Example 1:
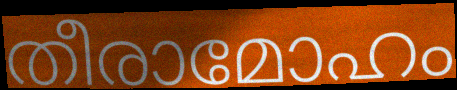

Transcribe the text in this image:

തീരാമോഹം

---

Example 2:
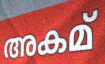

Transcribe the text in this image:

അകമ്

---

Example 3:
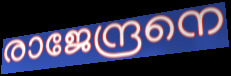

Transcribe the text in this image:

രാജേന്ദ്രനെ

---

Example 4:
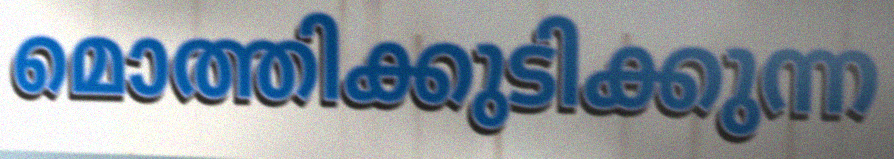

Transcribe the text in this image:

മൊത്തിക്കുടിക്കുന്ന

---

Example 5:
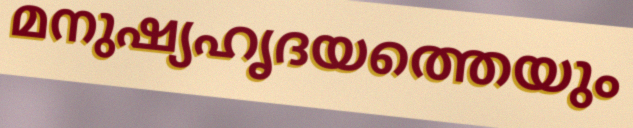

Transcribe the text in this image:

മനുഷ്യഹൃദയത്തെയും